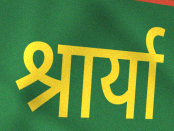
श्रार्या